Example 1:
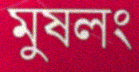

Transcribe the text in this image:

মুষলং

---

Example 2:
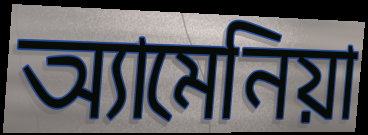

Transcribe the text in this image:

অ্যামেনিয়া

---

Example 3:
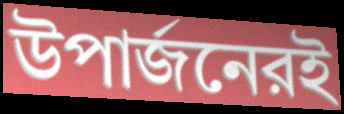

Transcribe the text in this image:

উপার্জনেরই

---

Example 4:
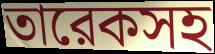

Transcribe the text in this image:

তারেকসহ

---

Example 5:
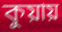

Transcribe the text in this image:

কুয়ায়